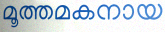
മൂത്തമകനായ